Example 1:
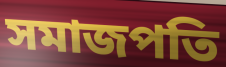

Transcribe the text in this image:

সমাজপতি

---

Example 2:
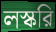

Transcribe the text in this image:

লস্করি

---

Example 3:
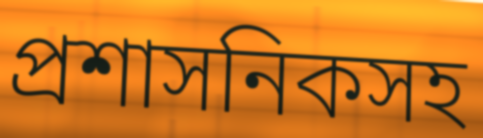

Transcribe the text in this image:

প্রশাসনিকসহ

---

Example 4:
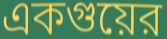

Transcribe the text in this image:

একগুয়ের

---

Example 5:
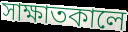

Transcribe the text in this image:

সাক্ষাতকালে